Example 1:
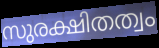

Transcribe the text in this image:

സുരക്ഷിതത്വം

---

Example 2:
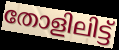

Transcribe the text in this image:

തോളിലിട്ട്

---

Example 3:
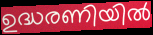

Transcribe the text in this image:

ഉദ്ധരണിയിൽ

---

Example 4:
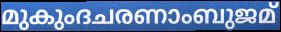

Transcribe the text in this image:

മുകുംദചരണാംബുജമ്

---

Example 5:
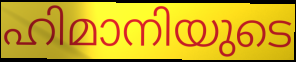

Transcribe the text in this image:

ഹിമാനിയുടെ